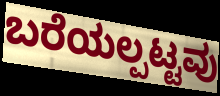
ಬರೆಯಲ್ಪಟ್ಟವು